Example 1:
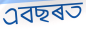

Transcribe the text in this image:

এবছৰত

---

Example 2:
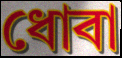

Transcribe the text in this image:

ধোবা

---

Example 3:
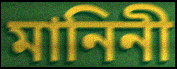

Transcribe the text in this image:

মানিনী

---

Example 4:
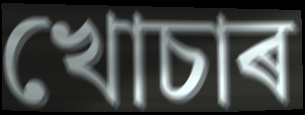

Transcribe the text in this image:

খোচাৰ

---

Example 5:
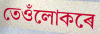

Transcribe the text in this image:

তেওঁলোকৰে